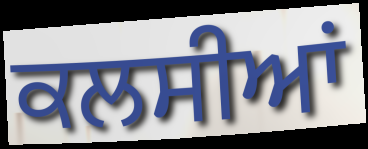
ਕਲਸੀਆਂ